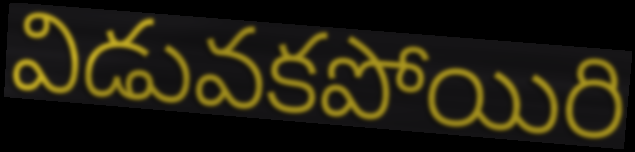
విడువకపోయిరి